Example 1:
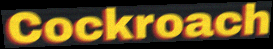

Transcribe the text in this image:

Cockroach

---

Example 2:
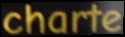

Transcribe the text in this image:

charte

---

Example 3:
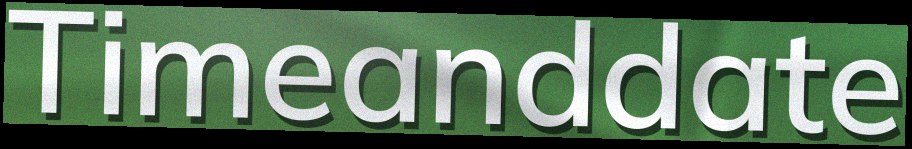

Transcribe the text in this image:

Timeanddate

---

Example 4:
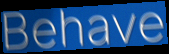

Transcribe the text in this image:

Behave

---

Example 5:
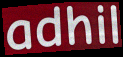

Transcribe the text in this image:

adhil